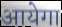
आयेगा